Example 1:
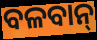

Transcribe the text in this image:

ବଳବାନ୍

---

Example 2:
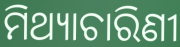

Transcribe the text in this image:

ମିଥ୍ୟାଚାରିଣୀ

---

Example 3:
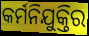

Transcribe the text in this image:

କର୍ମନିଯୁକ୍ତିର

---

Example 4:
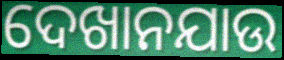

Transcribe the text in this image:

ଦେଖାନଯାଉ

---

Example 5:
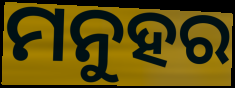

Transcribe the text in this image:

ମନୁହର